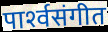
पार्श्वसंगीत